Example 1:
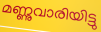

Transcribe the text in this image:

മണ്ണുവാരിയിട്ടു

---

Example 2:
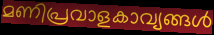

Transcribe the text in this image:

മണിപ്രവാളകാവ്യങ്ങൾ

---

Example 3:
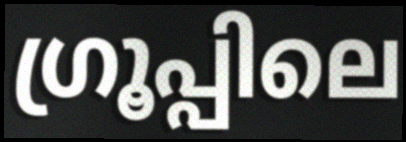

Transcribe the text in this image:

ഗ്രൂപ്പിലെ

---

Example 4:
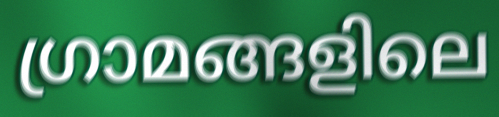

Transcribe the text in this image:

ഗ്രാമങ്ങളിലെ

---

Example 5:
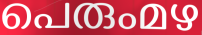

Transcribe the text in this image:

പെരുംമഴ